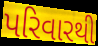
પરિવારથી